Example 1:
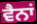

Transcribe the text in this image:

ਵੈਨਾਂ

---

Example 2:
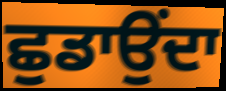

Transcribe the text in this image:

ਛੁਡਾਉਂਦਾ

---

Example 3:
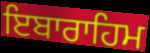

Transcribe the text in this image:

ਇਬਾਰਾਹਿਮ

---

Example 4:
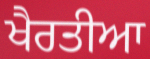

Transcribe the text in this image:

ਖੈਰਤੀਆ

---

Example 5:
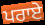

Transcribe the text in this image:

ਪਰਾਏ